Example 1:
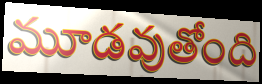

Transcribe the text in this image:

మూడవుతోంది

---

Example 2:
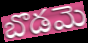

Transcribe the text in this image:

బొడమె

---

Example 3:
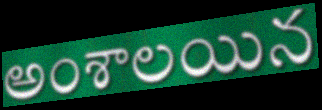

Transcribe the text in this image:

అంశాలయిన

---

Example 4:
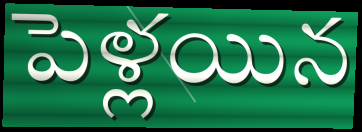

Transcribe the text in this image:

పెళ్లయిన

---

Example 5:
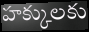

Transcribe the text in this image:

హక్కులకు